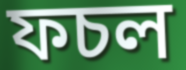
ফচল